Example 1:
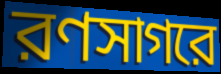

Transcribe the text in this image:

রণসাগরে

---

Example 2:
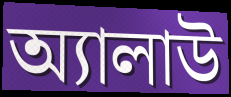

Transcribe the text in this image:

অ্যালাউ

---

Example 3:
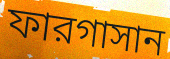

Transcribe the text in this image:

ফারগাসান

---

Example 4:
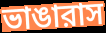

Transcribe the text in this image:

ভাঙারাস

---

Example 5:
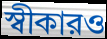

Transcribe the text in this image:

স্বীকারও